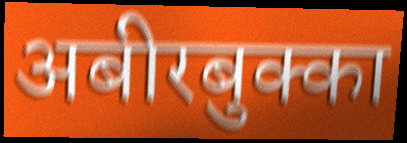
अबीरबुक्का